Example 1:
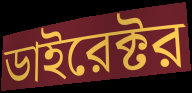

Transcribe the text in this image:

ডাইরেক্টর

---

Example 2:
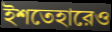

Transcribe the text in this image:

ইশতেহারেও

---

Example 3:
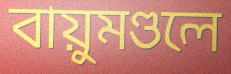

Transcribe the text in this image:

বায়ুমণ্ডলে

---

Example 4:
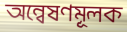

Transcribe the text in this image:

অন্বেষণমূলক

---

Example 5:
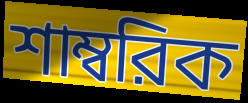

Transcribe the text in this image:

শাম্বরিক